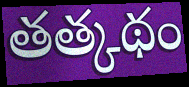
తత్కథం